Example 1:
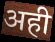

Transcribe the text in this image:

अही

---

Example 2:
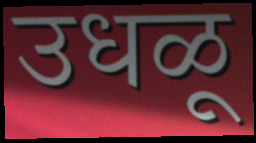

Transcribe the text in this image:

उधळू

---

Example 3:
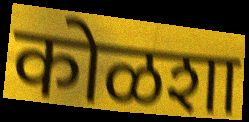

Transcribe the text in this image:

कोळशा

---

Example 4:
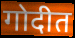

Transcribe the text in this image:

गोदीत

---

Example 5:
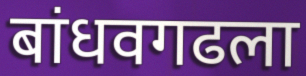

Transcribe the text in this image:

बांधवगढला